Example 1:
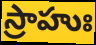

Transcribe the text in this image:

స్రాహుః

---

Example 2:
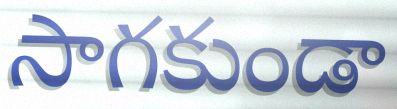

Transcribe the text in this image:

సాగకుండా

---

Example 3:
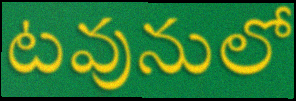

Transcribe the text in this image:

టవునులో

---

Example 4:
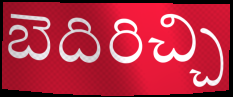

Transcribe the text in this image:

బెదిరిచ్చి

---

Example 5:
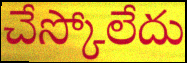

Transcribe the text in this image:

చేస్కోలేదు